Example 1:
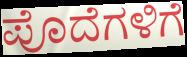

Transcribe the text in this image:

ಪೊದೆಗಳಿಗೆ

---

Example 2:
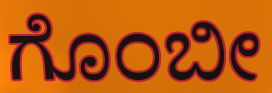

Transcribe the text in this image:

ಗೊಂಬೀ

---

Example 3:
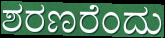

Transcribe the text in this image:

ಶರಣರೆಂದು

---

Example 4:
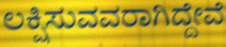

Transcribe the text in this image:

ಲಕ್ಷಿಸುವವರಾಗಿದ್ದೇವೆ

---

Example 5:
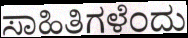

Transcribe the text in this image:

ಸಾಹಿತಿಗಳೆಂದು